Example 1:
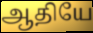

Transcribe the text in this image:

ஆதியே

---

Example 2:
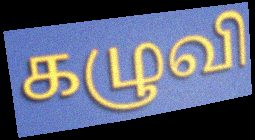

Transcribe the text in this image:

கழுவி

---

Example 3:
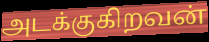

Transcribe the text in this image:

அடக்குகிறவன்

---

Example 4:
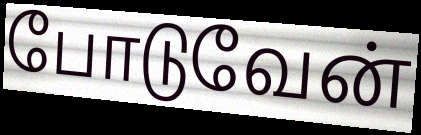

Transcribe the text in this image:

போடுவேன்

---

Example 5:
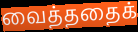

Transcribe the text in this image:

வைத்ததைக்